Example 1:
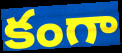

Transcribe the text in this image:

కంగా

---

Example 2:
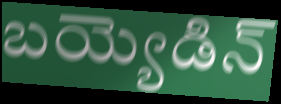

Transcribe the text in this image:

బయ్యెడిన్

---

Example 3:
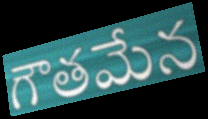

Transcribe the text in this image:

గౌతమేన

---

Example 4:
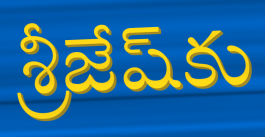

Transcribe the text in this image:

శ్రీజేష్‌కు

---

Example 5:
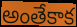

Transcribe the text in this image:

అంతేకాక